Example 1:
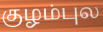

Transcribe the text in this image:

குழம்புல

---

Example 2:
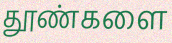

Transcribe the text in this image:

தூண்களை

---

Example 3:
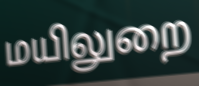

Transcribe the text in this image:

மயிலுறை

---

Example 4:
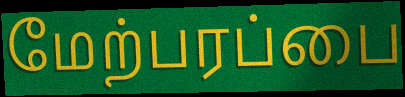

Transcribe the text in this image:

மேற்பரப்பை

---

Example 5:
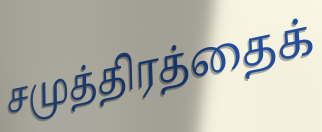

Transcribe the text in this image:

சமுத்திரத்தைக்